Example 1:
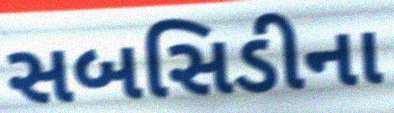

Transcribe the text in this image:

સબસિડીના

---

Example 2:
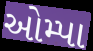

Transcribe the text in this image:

ઓમ્પા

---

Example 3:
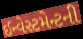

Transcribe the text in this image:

ઈન્વેસ્ટમેન્ટની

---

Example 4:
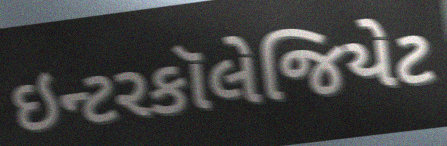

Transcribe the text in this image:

ઇન્ટરકૉલેજિયેટ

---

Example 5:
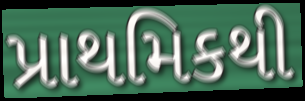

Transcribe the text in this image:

પ્રાથમિકથી